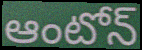
ఆంటోన్